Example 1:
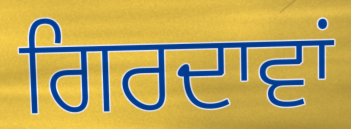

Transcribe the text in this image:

ਗਿਰਦਾਵਾਂ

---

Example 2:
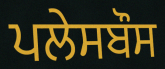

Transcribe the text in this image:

ਪਲੇਸਬੌਸ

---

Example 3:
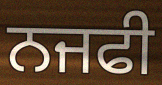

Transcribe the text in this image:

ਨਜਫੀ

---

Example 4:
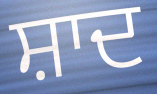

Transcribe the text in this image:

ਸ਼ਾਦ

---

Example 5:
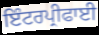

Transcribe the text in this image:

ਇੰਟਰਪ੍ਰੀਫਾਈ